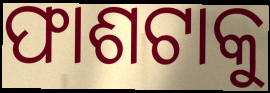
ଫାଶଟାକୁ